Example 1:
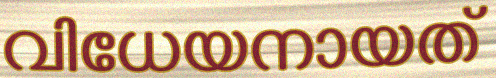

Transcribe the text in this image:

വിധേയനായത്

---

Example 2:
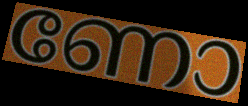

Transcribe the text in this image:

ണോ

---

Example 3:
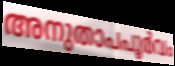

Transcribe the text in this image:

അനുതാപപൂർവം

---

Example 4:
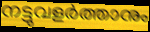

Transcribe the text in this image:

നട്ടുവളർത്താനും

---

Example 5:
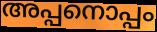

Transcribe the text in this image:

അപ്പനൊപ്പം